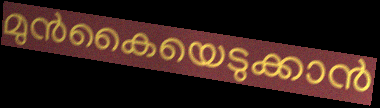
മുൻകൈയെടുക്കാൻ